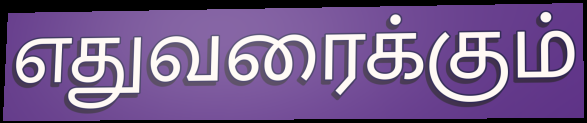
எதுவரைக்கும்